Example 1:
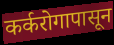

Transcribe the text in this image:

कर्करोगापासून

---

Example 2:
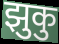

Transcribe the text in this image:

झुकु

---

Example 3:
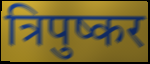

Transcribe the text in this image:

त्रिपुष्कर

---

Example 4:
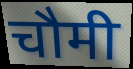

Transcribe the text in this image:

चौमी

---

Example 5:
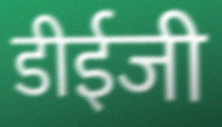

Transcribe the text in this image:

डीईजी